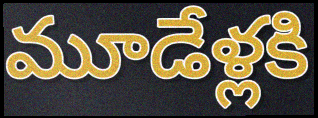
మూడేళ్లకి